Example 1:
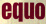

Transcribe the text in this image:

equo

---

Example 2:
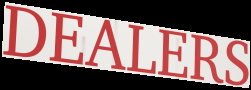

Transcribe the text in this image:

DEALERS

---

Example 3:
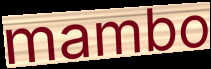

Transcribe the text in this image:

mambo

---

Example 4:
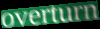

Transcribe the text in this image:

overturn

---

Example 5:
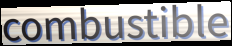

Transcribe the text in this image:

combustible